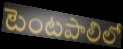
టెంటపాలిలో